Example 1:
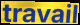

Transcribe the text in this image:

travail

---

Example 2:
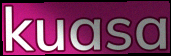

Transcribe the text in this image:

kuasa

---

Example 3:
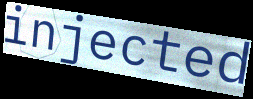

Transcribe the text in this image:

injected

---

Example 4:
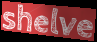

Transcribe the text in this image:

shelve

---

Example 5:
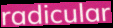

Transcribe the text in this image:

radicular